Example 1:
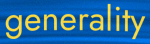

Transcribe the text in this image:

generality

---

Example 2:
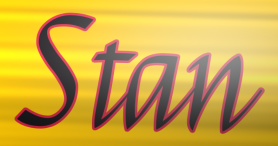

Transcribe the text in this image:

Stan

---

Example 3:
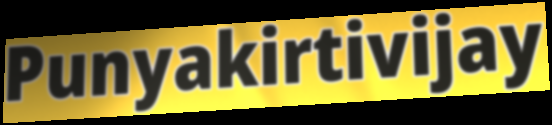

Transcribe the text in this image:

Punyakirtivijay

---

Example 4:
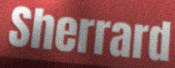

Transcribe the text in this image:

Sherrard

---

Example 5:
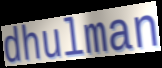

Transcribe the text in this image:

dhulman